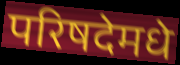
परिषदेमधे